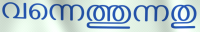
വന്നെത്തുന്നതു